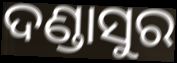
ଦଣ୍ଡାସୁର